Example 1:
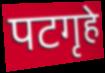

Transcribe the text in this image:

पटगृहे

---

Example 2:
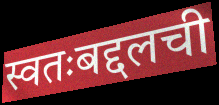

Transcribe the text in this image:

स्वतःबद्दलची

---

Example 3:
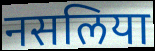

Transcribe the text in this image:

नसलिया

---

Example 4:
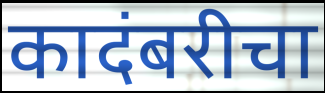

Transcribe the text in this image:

कादंबरीचा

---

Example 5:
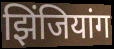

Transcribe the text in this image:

झिंजियांग